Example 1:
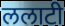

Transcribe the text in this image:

ललाटी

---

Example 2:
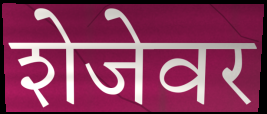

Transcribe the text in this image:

शेजेवर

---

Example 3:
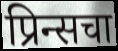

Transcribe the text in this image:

प्रिन्सचा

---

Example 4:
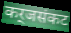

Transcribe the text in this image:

कर्जसंकट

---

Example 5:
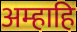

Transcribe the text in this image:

अम्हाहि